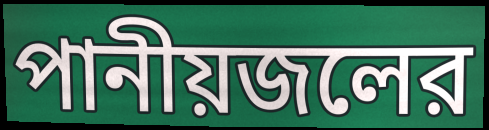
পানীয়জলের